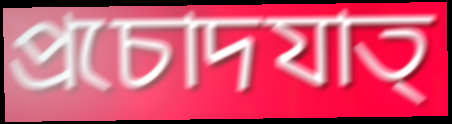
প্রচোদযাত্